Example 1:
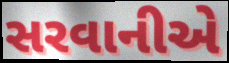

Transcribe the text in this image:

સરવાનીએ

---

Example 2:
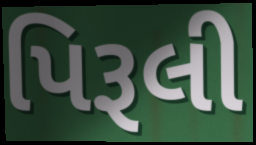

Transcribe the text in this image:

પિરૂલી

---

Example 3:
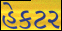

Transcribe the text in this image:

હેકટર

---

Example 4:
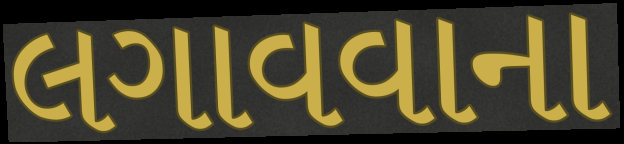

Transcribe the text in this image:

લગાવવાના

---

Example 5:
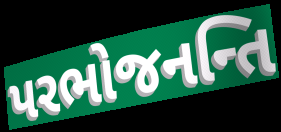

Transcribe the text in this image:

પરભોજનન્તિ